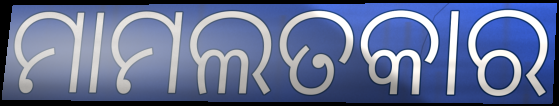
ମାମଲତକାର